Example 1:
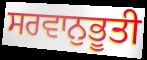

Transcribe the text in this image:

ਸਰਵਾਨੁਭੂਤੀ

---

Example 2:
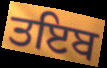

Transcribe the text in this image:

ਤਇਬ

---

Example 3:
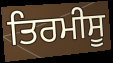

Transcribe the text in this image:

ਤਿਰਮੀਸੂ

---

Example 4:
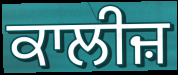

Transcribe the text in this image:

ਕਾਲੀਜ਼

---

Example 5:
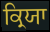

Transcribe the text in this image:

ਕ੍ਰਿਯਾ